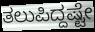
ತಲುಪಿದ್ದಷ್ಟೇ